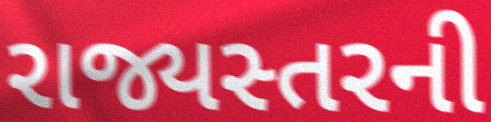
રાજ્યસ્તરની